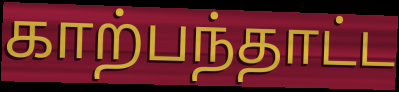
காற்பந்தாட்ட